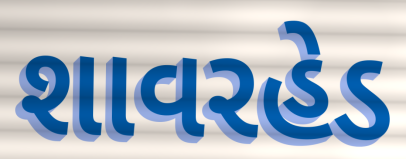
શાવરહેડ